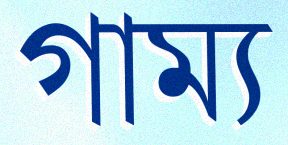
গাম্য